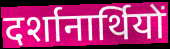
दर्शानार्थियों